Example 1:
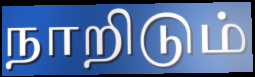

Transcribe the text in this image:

நாறிடும்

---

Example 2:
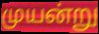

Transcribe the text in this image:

முயன்று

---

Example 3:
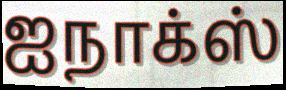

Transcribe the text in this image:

ஐநாக்ஸ்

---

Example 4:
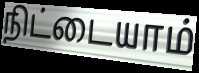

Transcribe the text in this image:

நிட்டையாம்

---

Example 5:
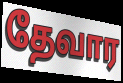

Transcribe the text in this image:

தேவார